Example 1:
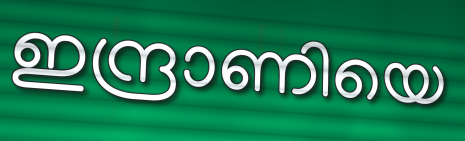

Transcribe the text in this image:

ഇന്ദ്രാണിയെ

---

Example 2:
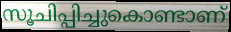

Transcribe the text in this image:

സൂചിപ്പിച്ചുകൊണ്ടാണ്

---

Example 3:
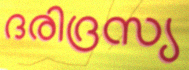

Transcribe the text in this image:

ദരിദ്രസ്യ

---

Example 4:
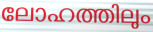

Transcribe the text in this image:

ലോഹത്തിലും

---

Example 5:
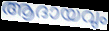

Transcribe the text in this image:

ആദായവും